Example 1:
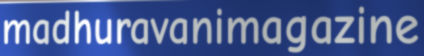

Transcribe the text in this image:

madhuravanimagazine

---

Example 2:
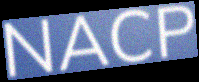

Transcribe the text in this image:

NACP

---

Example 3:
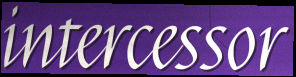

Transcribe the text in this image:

intercessor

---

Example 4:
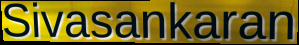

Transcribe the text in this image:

Sivasankaran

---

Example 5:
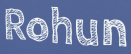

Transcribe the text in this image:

Rohun